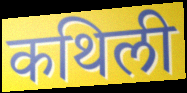
कथिली